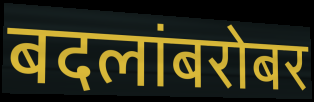
बदलांबरोबर